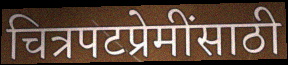
चित्रपटप्रेमींसाठी